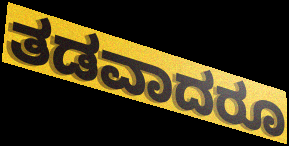
ತಡವಾದರೂ